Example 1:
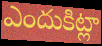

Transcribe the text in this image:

ఎందుకిట్లా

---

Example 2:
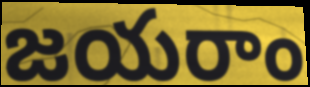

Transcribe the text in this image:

జయరాం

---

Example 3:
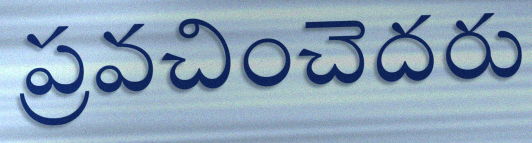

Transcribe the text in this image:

ప్రవచించెదరు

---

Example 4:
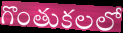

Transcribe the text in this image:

గొంతుకలలో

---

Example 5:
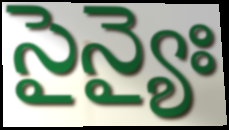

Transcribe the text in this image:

సైన్యైః